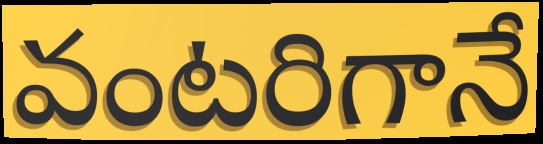
వంటరిగానే